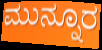
ಮುನ್ನೂರ